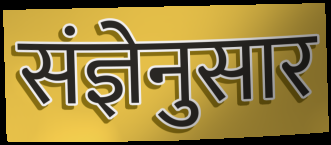
संज्ञेनुसार